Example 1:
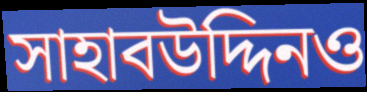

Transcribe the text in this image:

সাহাবউদ্দিনও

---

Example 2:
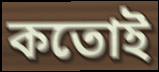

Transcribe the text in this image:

কতোই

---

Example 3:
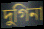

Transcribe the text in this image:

দুগিনা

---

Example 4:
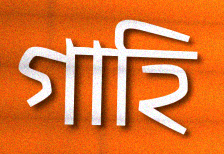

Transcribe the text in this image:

গাহি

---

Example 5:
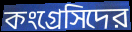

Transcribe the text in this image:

কংগ্রেসিদের